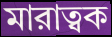
মারাত্বক